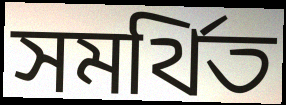
সমৰ্থিত